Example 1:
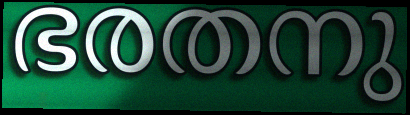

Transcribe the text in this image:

ഭരതനു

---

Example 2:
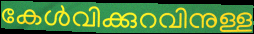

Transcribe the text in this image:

കേൾവിക്കുറവിനുള്ള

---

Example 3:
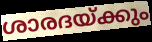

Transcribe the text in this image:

ശാരദയ്ക്കും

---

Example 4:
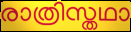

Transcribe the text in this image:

രാത്രിസ്തഥാ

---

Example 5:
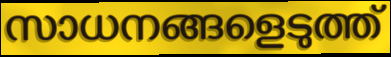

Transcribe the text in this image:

സാധനങ്ങളെടുത്ത്